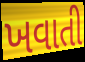
ખવાતી